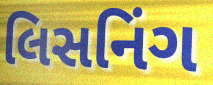
લિસનિંગ